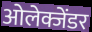
ओलेक्जेंडर